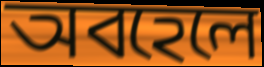
অবহেলে